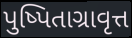
પુષ્પિતાગ્રાવૃત્ત